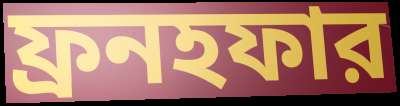
ফ্রনহফার